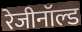
रेजीनॉल्ड